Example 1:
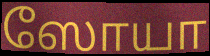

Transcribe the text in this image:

ஸோயா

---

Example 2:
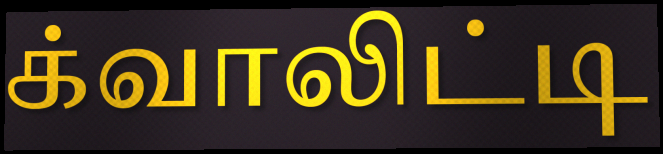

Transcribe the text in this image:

க்வாலிட்டி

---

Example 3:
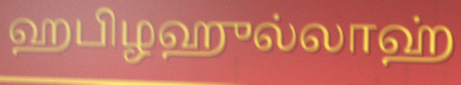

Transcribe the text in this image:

ஹபிழஹுல்லாஹ்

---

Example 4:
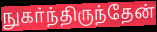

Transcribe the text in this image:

நுகர்ந்திருந்தேன்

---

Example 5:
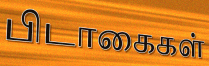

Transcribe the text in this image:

பிடாகைகள்